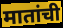
मातांची